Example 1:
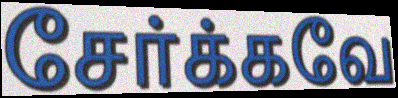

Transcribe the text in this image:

சேர்க்கவே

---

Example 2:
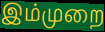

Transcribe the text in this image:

இம்முறை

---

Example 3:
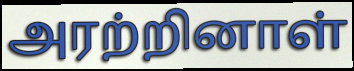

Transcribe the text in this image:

அரற்றினாள்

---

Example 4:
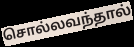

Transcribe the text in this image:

சொல்லவந்தால்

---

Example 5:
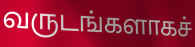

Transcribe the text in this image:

வருடங்களாகச்